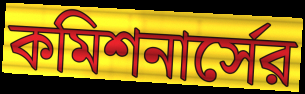
কমিশনার্সের